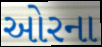
ઓરના